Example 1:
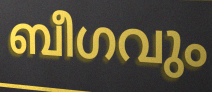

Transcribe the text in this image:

ബീഗവും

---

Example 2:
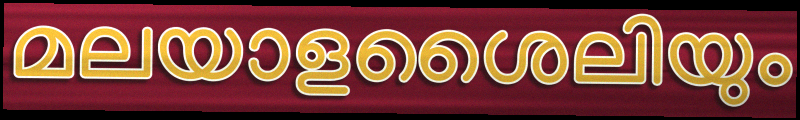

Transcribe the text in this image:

മലയാളശൈലിയും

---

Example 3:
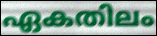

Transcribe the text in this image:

ഏകതിലം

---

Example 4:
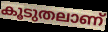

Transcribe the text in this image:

കൂടുതലാണ്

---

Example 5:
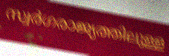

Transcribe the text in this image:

സ്വർഗരാജ്യത്തിലുള്ള